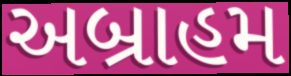
અબ્રાહમ